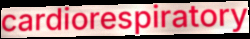
cardiorespiratory